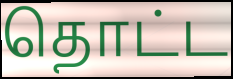
தொட்ட